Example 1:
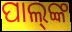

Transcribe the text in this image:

ପାଲ୍‌ଙ୍କ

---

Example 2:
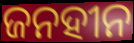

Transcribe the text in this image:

ଜନହୀନ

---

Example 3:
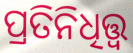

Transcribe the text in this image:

ପ୍ରତିନିଧିତ୍ତ୍ୱ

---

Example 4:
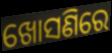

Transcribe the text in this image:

ଖୋସଣିରେ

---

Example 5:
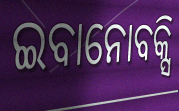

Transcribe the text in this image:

ଇବାନୋବକ୍ସି